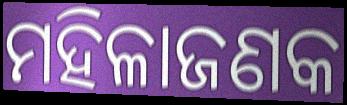
ମହିଳାଜଣକ